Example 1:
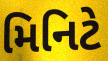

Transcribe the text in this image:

મિનિટે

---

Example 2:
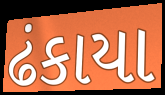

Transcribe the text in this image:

ઢંકાયા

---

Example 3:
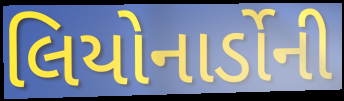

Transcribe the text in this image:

લિયોનાર્ડોની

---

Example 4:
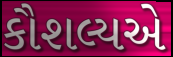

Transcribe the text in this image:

કૌશલ્યએ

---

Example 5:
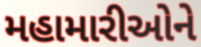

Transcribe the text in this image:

મહામારીઓને